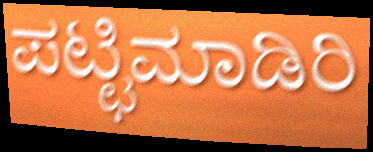
ಪಟ್ಟಿಮಾಡಿರಿ